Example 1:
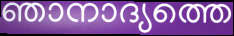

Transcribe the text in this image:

ഞാനാദ്യത്തെ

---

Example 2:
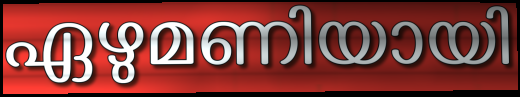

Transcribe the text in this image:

ഏഴുമണിയായി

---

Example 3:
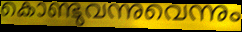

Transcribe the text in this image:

കൊണ്ടുവന്നുവെന്നും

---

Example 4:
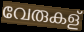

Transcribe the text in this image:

വേരുകള്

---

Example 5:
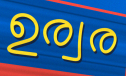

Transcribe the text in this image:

ഉര്വര